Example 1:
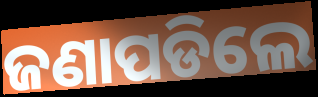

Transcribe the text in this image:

ଜଣାପଡିଲେ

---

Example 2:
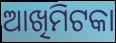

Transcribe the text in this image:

ଆଖିମିଟକା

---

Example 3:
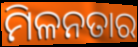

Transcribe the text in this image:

ମିଳନତାର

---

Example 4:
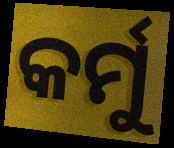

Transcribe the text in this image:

କର୍ମୁ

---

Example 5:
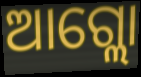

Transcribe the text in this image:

ଆଗ୍ଲୋ